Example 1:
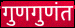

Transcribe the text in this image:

गुणगुणंत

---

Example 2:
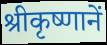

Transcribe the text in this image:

श्रीकृष्णानें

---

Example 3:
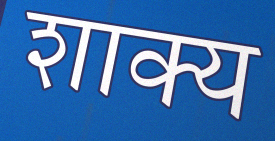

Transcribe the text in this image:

शाक्य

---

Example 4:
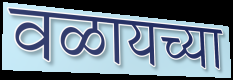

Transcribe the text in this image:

वळायच्या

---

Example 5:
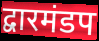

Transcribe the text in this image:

द्वारमंडप